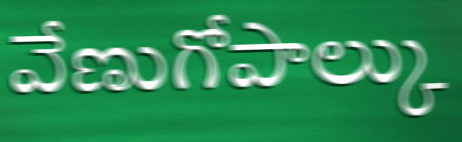
వేణుగోపాల్కు